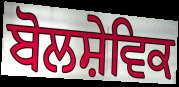
ਬੋਲਸ਼ੇਵਿਕ